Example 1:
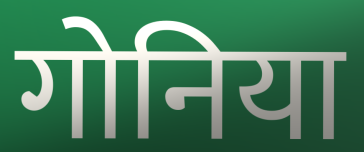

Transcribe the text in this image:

गोनिया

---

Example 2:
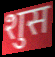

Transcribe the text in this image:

शुस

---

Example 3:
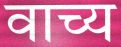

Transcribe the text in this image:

वाच्य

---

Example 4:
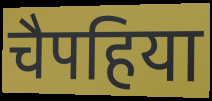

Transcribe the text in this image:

चैपहिया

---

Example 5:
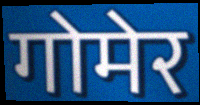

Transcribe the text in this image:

गोमेर